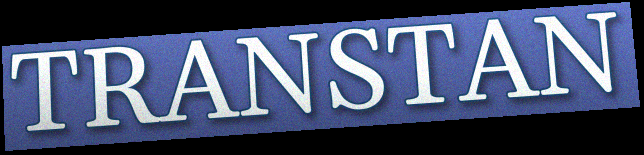
TRANSTAN